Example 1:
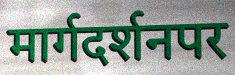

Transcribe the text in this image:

मार्गदर्शनपर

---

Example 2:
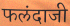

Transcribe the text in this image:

फलंदाजी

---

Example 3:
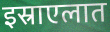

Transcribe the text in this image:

इस्राएलात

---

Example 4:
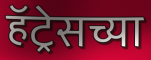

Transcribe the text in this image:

हॅट्रेसच्या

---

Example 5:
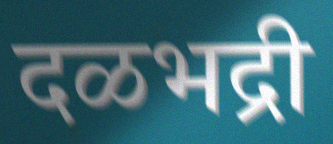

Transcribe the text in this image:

दळभद्री